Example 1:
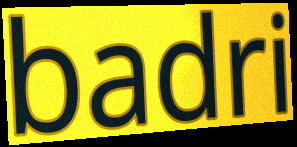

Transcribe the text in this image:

badri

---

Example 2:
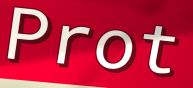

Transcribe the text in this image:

Prot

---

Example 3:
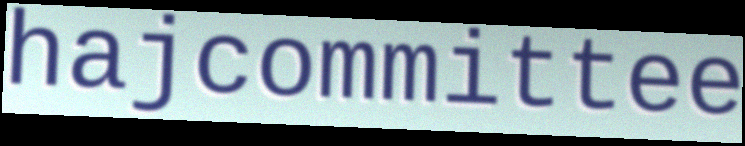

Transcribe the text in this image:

hajcommittee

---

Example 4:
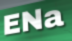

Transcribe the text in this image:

ENa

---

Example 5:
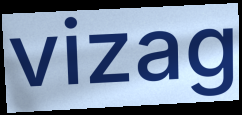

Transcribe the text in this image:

vizag